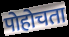
पोहोचता